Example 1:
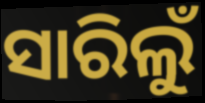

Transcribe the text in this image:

ସାରିଲୁଁ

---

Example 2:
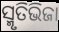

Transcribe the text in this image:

ସ୍ମୃତିଭିଜା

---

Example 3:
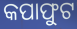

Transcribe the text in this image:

କପାଫୁଟ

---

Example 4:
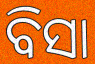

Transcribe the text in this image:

ବିସା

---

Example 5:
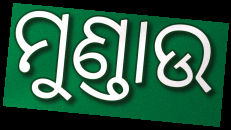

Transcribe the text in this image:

ମୁଣ୍ଡାଉ